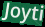
Joyti